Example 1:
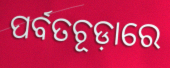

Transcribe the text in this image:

ପର୍ବତଚୂଡ଼ାରେ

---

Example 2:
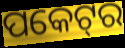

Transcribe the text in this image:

ପକେଟ୍‌ର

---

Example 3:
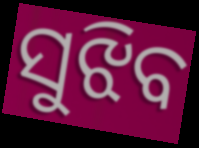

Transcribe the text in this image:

ସୁଝିବ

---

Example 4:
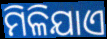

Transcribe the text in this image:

ମିଳିଯାଏ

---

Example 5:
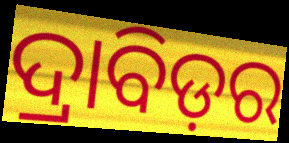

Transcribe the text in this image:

ଦ୍ରାବିଡ଼ର